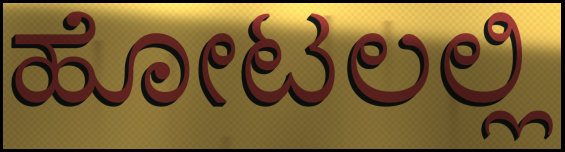
ಹೋಟಲಲ್ಲಿ